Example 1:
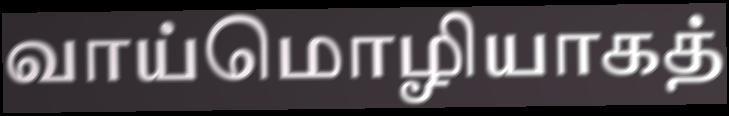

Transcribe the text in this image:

வாய்மொழியாகத்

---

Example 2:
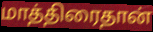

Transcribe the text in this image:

மாத்திரைதான்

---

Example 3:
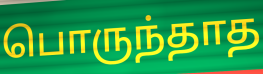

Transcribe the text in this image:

பொருந்தாத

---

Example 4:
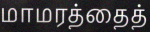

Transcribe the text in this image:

மாமரத்தைத்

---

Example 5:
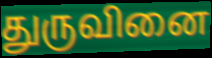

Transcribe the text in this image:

துருவினை